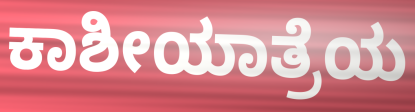
ಕಾಶೀಯಾತ್ರೆಯ